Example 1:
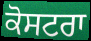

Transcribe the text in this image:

ਕੋਸਟਰਾ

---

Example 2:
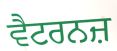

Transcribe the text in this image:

ਵੈਟਰਨਜ਼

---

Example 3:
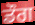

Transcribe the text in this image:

ਡੌਗ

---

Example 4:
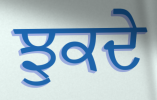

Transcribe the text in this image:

ਝੁਕਦੇ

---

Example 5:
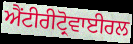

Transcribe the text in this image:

ਐਂਟੀਰੀਟ੍ਰੋਵਾਈਰਲ